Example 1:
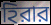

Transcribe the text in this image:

হিরার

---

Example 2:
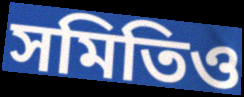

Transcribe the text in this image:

সমিতিও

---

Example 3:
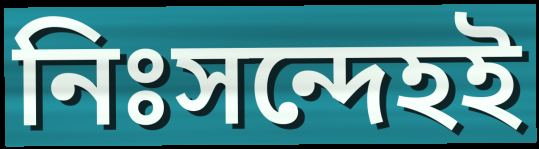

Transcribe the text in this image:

নিঃসন্দেহই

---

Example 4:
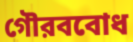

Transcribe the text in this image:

গৌরববোধ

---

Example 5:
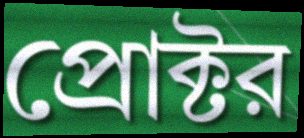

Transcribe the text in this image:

প্রোক্টর